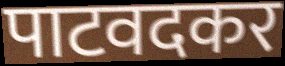
पाटवदकर